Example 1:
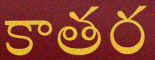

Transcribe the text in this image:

కాతర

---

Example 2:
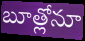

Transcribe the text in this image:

బూత్లోనూ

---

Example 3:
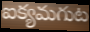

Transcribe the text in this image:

ఐక్యమగుట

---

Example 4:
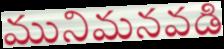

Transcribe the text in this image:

మునిమనవడి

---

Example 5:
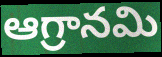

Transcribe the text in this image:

ఆగ్రానమి